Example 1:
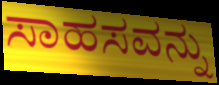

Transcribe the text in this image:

ಸಾಹಸವನ್ನು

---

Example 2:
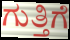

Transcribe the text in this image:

ಗುತ್ತಿಗೆ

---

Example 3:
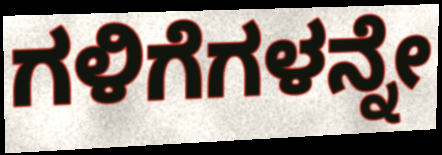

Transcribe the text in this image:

ಗಳಿಗೆಗಳನ್ನೇ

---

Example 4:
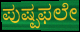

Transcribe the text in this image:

ಪುಷ್ಪಫಲೇ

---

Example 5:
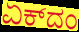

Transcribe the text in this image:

ಏಕ್‌ದಂ